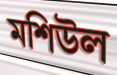
মশিউল